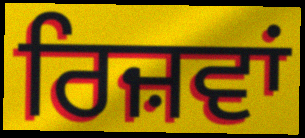
ਰਿਜ਼ਵਾਂ